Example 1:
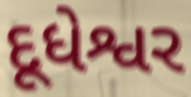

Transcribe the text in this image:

દૂધેશ્વર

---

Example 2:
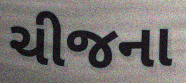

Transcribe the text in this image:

ચીજના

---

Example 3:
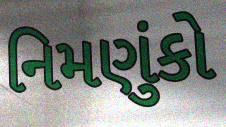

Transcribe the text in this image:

નિમણુંકો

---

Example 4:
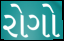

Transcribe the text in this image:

રોગો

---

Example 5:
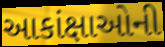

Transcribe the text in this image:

આકાંક્ષાઓની